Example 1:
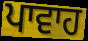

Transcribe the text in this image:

ਪਾਵਾਹ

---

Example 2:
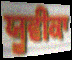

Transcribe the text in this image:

ਯੂਵੀਕਾ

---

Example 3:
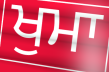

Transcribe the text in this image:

ਖੁਮਾ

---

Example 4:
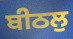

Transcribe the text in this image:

ਬੀਠਲੁ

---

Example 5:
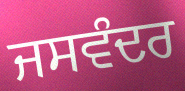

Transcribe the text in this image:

ਜਸਵੰਦਰ